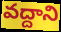
వద్దాని